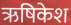
ऋषिकेश